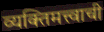
व्यक्तिमत्त्वाची